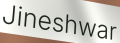
Jineshwar